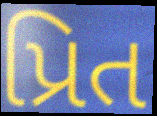
પ્રિત